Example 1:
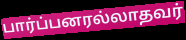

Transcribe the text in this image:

பார்ப்பனரல்லாதவர்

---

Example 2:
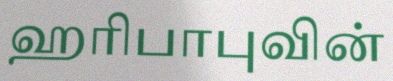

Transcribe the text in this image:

ஹரிபாபுவின்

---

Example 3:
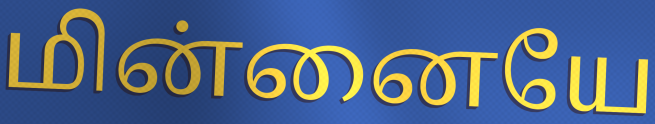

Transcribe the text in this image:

மின்னையே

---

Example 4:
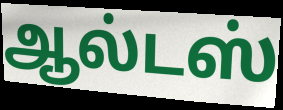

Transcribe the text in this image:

ஆல்டஸ்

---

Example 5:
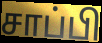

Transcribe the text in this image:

சாப்பி